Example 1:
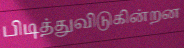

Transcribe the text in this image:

பிடித்துவிடுகின்றன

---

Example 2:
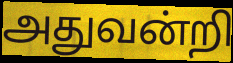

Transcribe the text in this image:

அதுவன்றி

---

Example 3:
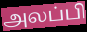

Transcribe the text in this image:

அலப்பி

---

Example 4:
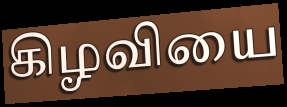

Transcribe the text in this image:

கிழவியை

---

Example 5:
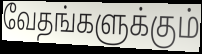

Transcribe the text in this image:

வேதங்களுக்கும்